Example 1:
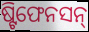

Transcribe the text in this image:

ଷ୍ଟିଫେନସନ୍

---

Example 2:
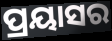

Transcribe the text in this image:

ପ୍ରୟାସର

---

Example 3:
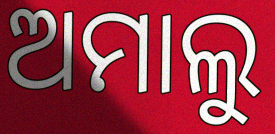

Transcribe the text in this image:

ଅମାଲୁ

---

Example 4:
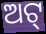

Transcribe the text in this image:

ଅଟ୍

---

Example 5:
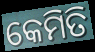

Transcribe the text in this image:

କେମିତି